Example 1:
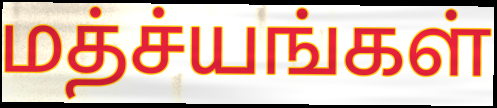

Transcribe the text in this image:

மத்ச்யங்கள்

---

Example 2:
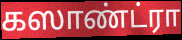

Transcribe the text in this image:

கஸாண்ட்ரா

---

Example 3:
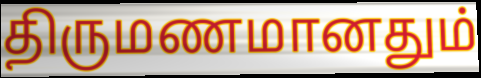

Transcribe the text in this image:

திருமணமானதும்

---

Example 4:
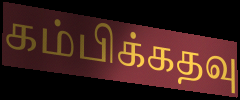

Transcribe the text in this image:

கம்பிக்கதவு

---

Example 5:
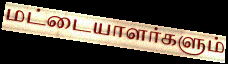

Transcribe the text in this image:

மட்டையாளர்களும்